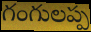
గంగులప్ప